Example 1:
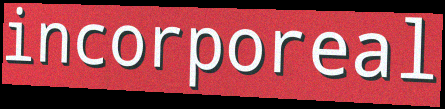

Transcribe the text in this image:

incorporeal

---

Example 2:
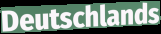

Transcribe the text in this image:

Deutschlands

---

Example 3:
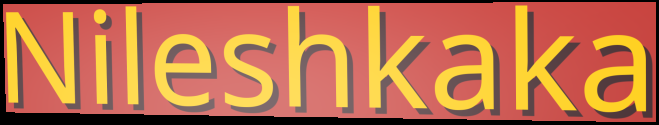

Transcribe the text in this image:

Nileshkaka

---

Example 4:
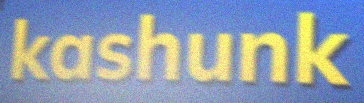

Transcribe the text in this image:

kashunk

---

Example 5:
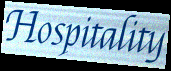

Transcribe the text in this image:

Hospitality